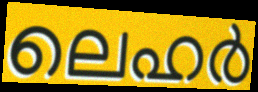
ലെഹർ